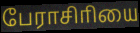
பேராசிரியை